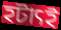
হটাৎই